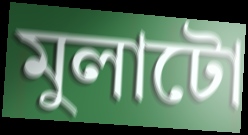
মুলাটো